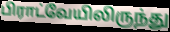
பிராட்வேயிலிருந்து